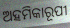
ଅହମିକାରୂପୀ